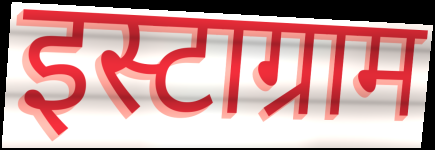
इस्टाग्राम